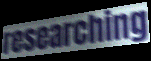
researching